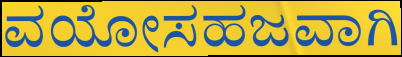
ವಯೋಸಹಜವಾಗಿ